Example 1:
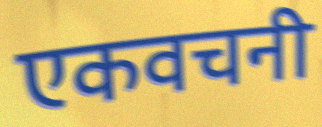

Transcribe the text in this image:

एकवचनी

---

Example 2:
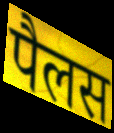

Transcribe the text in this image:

पैलस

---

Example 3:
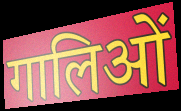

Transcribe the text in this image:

गालिओं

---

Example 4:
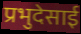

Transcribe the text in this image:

प्रभुदेसाई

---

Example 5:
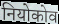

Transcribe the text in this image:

नियोकोव